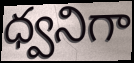
ధ్వనిగా